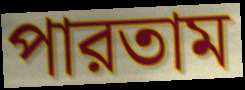
পারতাম